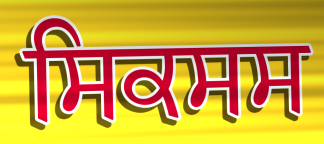
ਸਿਕਸਸ